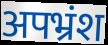
अपभ्रंश